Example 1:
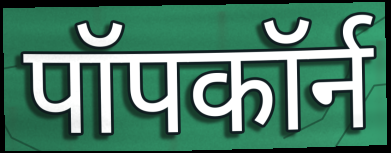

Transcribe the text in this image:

पॉपकॉर्न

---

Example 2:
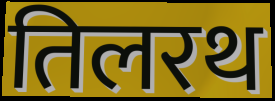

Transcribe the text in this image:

तिलरथ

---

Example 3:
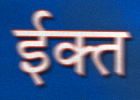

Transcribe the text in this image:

ईक्त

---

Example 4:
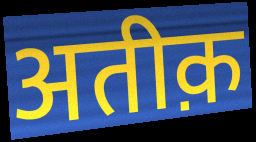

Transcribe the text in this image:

अतीक़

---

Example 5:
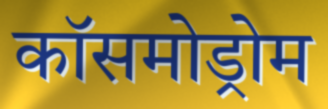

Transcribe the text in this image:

कॉसमोड्रोम